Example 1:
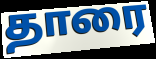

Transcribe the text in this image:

தாரை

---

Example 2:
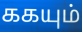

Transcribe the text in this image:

ககயும்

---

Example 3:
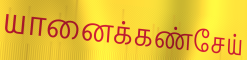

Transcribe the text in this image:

யானைக்கண்சேய்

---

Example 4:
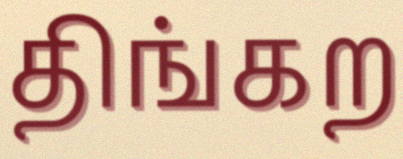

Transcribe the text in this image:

திங்கற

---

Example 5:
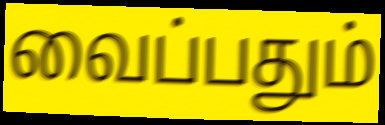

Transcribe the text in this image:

வைப்பதும்